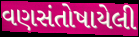
વણસંતોષાયેલી